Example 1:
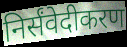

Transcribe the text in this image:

निर्संवेदीकरण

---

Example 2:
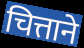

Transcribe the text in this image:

चित्ताने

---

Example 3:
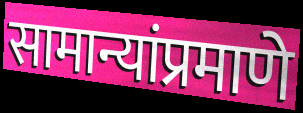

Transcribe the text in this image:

सामान्यांप्रमाणे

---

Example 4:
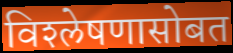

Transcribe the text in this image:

विश्लेषणासोबत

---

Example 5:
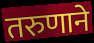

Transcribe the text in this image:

तरुणाने